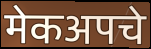
मेकअपचे